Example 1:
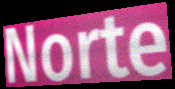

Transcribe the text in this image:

Norte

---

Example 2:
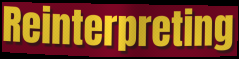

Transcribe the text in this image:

Reinterpreting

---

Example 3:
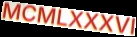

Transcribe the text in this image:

MCMLXXXVI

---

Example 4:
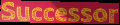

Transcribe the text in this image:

Successor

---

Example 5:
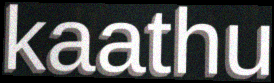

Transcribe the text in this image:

kaathu